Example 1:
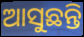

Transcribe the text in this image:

ଆସୁଛନ୍ତି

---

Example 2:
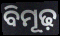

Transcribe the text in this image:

ବିମୂଢ଼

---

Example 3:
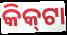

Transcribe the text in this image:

କିକ୍‍ଟା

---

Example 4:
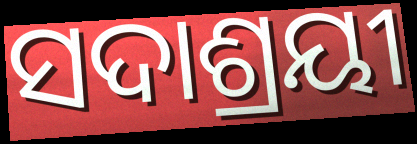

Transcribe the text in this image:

ସଦାଶ୍ରୟୀ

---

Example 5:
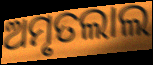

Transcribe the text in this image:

ଅମୃତଲାଲ